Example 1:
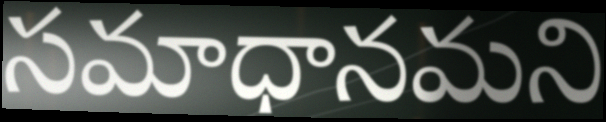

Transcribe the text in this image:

సమాధానమని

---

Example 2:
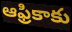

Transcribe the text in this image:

ఆఫ్రికాకు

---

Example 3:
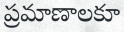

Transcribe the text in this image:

ప్రమాణాలకూ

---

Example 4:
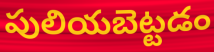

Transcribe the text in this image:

పులియబెట్టడం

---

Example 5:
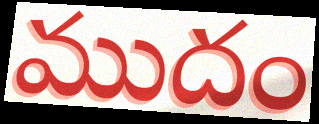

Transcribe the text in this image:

ముదం